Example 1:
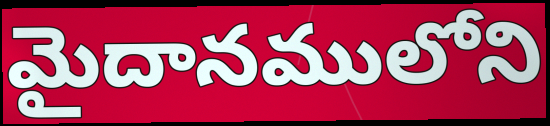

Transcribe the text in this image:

మైదానములోని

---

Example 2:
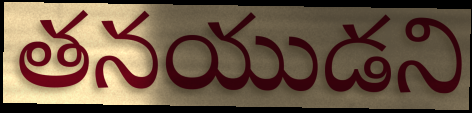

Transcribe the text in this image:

తనయుడని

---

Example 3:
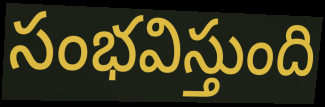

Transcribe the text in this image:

సంభవిస్తుంది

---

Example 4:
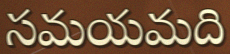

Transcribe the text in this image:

సమయమది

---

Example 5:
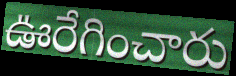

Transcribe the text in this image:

ఊరేగించారు